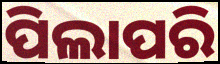
ପିଲାପରି